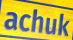
achuk